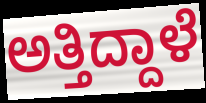
ಅತ್ತಿದ್ದಾಳೆ